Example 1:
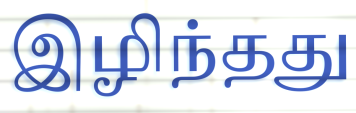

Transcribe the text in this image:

இழிந்தது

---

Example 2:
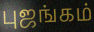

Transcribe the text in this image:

புஜங்கம்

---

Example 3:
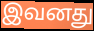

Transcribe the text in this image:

இவனது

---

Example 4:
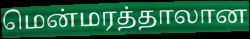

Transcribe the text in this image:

மென்மரத்தாலான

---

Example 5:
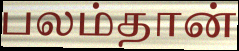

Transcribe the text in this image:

பலம்தான்